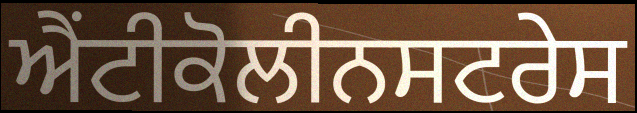
ਐਂਟੀਕੋਲੀਨਸਟਰੇਸ